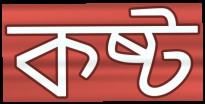
কষ্ট